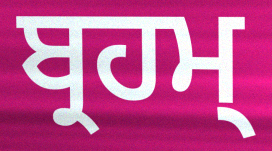
ਬ੍ਰਹਮ੍